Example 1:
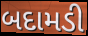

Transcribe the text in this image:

બદામડી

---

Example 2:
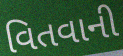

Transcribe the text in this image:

વિતવાની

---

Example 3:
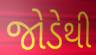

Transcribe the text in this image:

જોડેથી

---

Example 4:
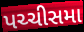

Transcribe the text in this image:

પચ્ચીસમા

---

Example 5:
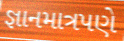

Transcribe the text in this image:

જ્ઞાનમાત્રપણે